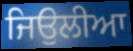
ਜਿਉਲੀਆ